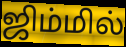
ஜிம்மில்